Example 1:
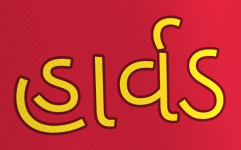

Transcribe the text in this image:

હાર્વડ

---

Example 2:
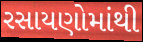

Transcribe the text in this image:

રસાયણોમાંથી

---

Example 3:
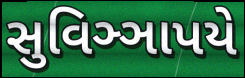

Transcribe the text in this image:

સુવિઞ્ઞાપયે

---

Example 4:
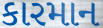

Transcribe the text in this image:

કારમાન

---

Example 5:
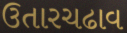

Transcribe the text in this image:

ઉતારચઢાવ